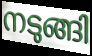
നടുങ്ങി